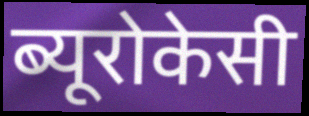
ब्यूरोकेसी